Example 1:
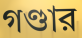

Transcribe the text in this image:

গণ্ডার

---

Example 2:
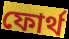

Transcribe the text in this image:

ফোর্থ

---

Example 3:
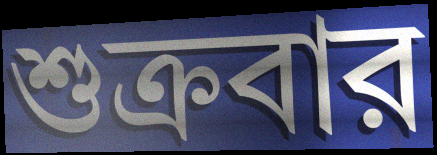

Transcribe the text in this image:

শুক্রবার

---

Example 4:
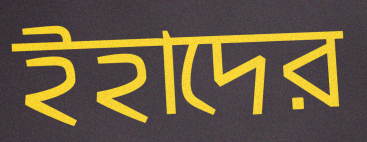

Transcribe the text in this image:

ইহাদের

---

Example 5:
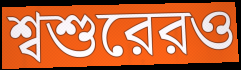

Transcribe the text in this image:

শ্বশুরেরও